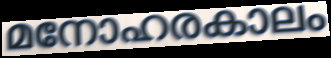
മനോഹരകാലം